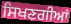
ਸਿਖਣਗੀਆਂ